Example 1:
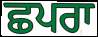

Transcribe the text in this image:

ਛਪਰਾ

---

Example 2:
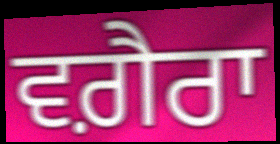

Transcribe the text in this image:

ਵਗ਼ੈਰਾ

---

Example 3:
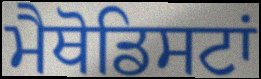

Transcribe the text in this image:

ਮੈਥੋਡਿਸਟਾਂ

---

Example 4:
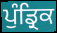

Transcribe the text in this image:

ਪੁੰਡ੍ਰਿਕ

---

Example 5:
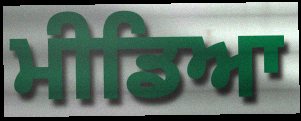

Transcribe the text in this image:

ਮੀਡਿਆ